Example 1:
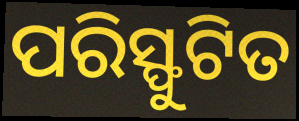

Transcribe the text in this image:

ପରିସ୍ଫୁଟିତ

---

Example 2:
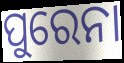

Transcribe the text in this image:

ପୁରେନା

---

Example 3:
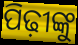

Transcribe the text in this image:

ପିଢ଼ୀଙ୍କୁ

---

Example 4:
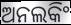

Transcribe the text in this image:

ଅନଲକିଂ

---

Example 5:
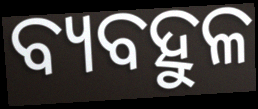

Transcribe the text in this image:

ବ୍ୟବହୁଳ